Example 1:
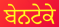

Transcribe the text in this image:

ਬੇਨਟੇਕੇ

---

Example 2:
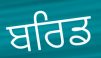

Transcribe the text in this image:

ਬਰਿਡ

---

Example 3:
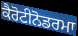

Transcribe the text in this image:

ਕੈਰੋਟੀਨੋਡਰਮਾ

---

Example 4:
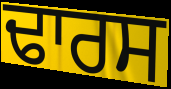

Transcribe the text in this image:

ਢਾਰਸ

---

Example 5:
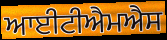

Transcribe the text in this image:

ਆਈਟੀਐਮਐਸ